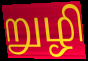
றுழி